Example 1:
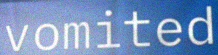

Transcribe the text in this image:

vomited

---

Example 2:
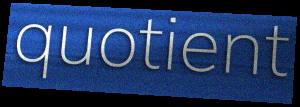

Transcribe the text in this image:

quotient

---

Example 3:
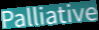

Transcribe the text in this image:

Palliative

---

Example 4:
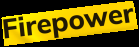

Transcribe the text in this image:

Firepower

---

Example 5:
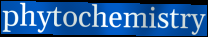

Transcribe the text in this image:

phytochemistry